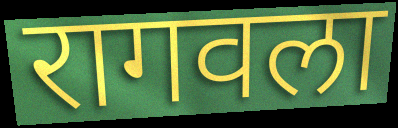
रागवला